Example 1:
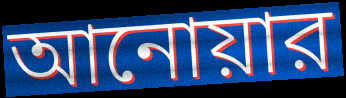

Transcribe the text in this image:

আনোয়ার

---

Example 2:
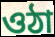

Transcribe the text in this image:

ওঠা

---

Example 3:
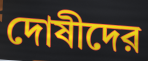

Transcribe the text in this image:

দোষীদের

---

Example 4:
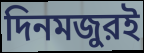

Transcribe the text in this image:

দিনমজুরই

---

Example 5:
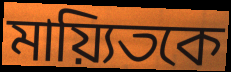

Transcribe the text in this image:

মায়্যিতকে